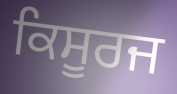
ਕਿਸੂਰਜ